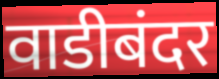
वाडीबंदर